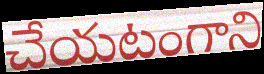
చేయటంగాని